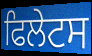
ਫਿਲੇਟਸ